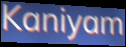
Kaniyam